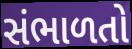
સંભાળતો